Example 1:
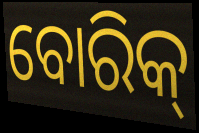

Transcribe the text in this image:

ବୋରିକ୍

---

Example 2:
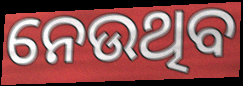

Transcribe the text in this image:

ନେଉଥିବ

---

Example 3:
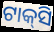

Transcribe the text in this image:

ଟାକ୍‍ସି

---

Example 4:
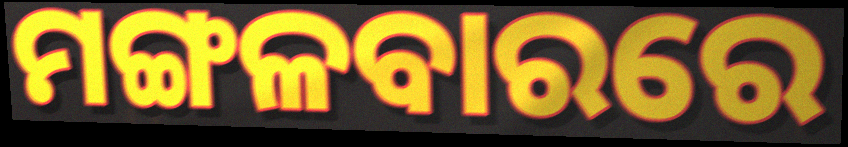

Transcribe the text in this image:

ମଙ୍ଗଳବାରରେ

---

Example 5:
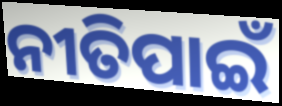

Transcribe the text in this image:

ନୀତିପାଇଁ